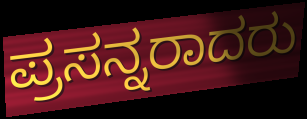
ಪ್ರಸನ್ನರಾದರು